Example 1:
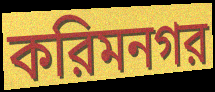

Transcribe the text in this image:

করিমনগর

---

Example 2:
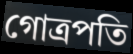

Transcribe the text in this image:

গোত্রপতি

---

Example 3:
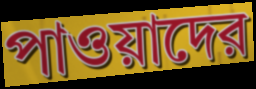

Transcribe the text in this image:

পাওয়াদের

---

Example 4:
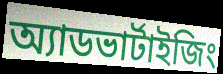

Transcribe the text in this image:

অ্যাডভার্টাইজিং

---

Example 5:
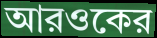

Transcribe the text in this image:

আরওকের